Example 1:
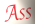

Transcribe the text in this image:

Ass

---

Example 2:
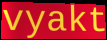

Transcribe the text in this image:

vyakt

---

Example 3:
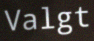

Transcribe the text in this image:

Valgt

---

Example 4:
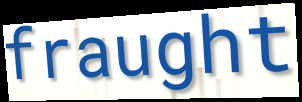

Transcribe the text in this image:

fraught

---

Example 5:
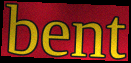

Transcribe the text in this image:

bent